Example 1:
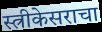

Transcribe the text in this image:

स्त्रीकेसराचा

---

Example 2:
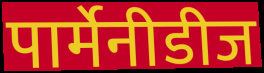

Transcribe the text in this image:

पार्मेनीडीज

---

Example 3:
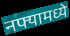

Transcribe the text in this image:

नफ्यामध्ये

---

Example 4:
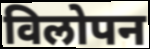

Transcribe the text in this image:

विलोपन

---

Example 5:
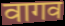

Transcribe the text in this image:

वागव